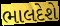
ભાલદેશે